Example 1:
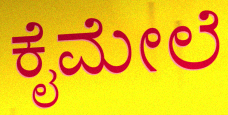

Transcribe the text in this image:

ಕೈಮೇಲೆ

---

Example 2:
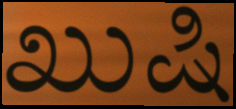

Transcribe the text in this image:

ಖುಷಿ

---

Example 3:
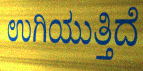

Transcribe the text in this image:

ಉಗಿಯುತ್ತಿದೆ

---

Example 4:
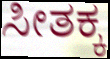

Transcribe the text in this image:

ಸೀತಕ್ಕ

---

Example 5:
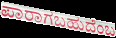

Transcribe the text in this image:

ಪಾರಾಗಬಹುದೆಂಬ